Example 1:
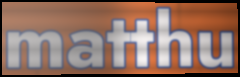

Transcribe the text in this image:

matthu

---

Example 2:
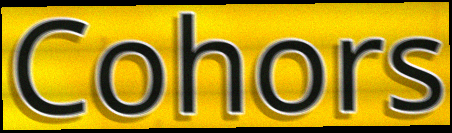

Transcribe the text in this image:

Cohors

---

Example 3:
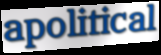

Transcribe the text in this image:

apolitical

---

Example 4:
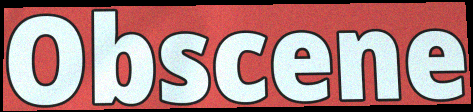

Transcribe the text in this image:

Obscene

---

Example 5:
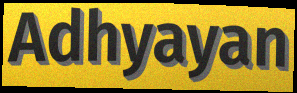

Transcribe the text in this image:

Adhyayan